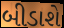
બીડાશે